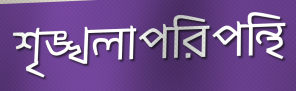
শৃঙ্খলাপরিপন্থি